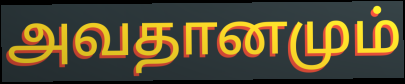
அவதானமும்